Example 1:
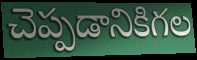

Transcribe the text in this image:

చెప్పడానికిగల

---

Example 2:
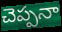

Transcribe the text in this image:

చెప్పనా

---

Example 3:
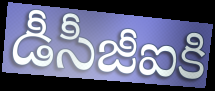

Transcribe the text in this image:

డీసీజీఐకి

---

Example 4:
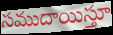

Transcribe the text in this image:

సముదాయిస్తూ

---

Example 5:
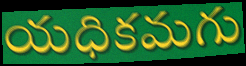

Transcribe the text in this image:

యధికమగు